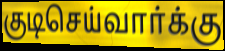
குடிசெய்வார்க்கு